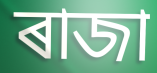
ৰাজা